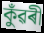
কুঁৱৰী